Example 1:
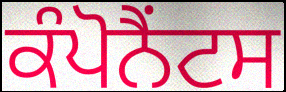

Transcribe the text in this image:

ਕੰਪੋਨੈਂਟਸ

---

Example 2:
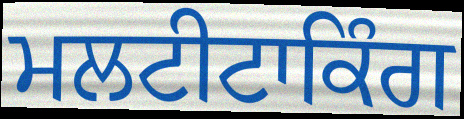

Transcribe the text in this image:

ਮਲਟੀਟਾਕਿੰਗ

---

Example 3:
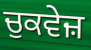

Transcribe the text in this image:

ਚੁਕਵੇਜ਼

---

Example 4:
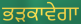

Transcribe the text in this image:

ਭੜਕਾਵੇਗਾ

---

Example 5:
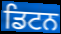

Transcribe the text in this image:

ਡਿਟਨ